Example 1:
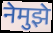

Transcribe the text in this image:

नेमुझे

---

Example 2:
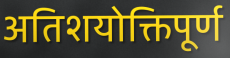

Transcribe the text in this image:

अतिशयोक्तिपूर्ण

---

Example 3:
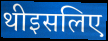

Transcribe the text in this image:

थीइसलिए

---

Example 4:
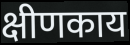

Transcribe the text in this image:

क्षीणकाय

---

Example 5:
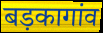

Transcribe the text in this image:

बड़कागांव